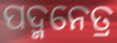
ପଦ୍ମନେତ୍ର